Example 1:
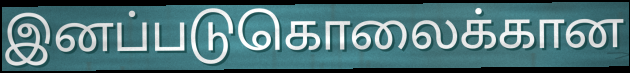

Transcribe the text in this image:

இனப்படுகொலைக்கான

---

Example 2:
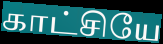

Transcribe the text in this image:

காட்சியே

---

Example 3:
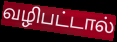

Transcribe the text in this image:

வழிபட்டால்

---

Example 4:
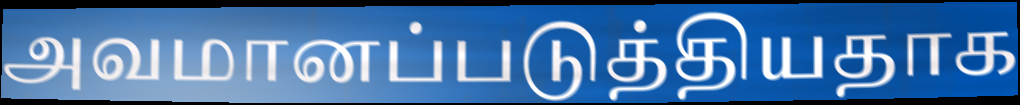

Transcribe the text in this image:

அவமானப்படுத்தியதாக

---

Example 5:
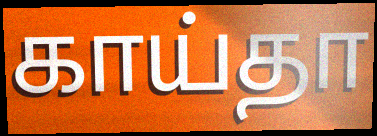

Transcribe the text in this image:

காய்தா